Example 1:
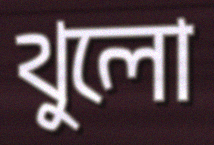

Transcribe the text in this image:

থুলো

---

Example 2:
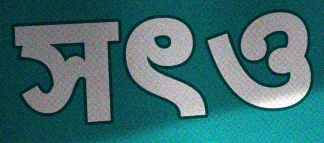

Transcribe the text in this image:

সৎও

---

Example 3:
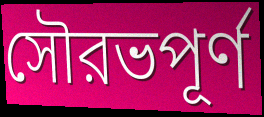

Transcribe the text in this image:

সৌরভপূর্ণ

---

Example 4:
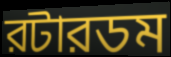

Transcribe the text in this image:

রটারডম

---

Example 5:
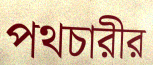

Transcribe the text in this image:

পথচারীর